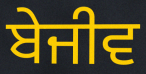
ਬੇਜੀਵ